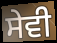
ਸੇਵੀ